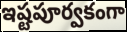
ఇష్టపూర్వకంగా